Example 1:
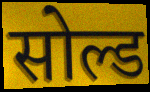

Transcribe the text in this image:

सोल्ड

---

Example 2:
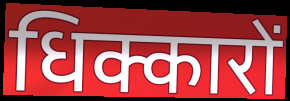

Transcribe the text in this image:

धिक्कारों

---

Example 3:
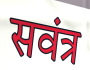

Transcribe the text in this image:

सवंत्र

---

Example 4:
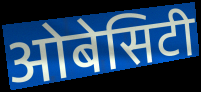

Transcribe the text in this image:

ओबेसिटी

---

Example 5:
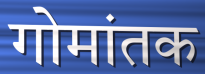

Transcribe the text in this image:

गोमांतक